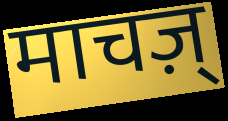
माचज़्